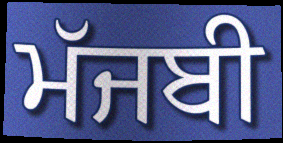
ਮੱਜਬੀ